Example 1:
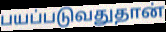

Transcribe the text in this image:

பயப்படுவதுதான்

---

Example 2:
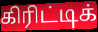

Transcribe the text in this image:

கிரிட்டிக்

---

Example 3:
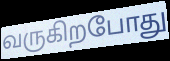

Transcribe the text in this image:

வருகிறபோது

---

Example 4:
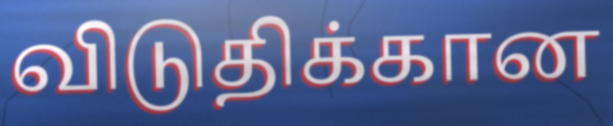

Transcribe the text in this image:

விடுதிக்கான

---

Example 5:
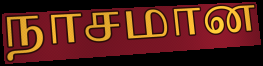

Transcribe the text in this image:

நாசமான